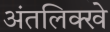
अंतलिक्खे